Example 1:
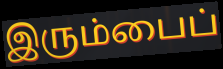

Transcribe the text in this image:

இரும்பைப்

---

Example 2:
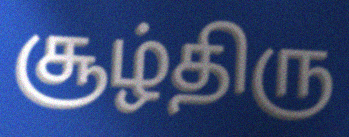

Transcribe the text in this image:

சூழ்திரு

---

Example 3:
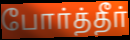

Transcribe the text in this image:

போர்த்தீர்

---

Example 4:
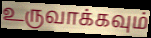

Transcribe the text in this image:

உருவாக்கவும்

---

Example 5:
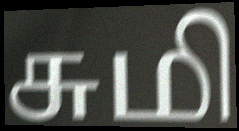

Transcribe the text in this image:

சுமி